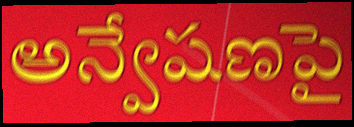
అన్వేషణపై